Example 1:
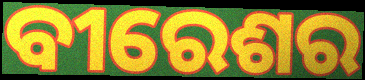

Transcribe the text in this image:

ବୀରେଶର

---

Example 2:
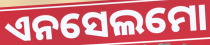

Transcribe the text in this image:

ଏନସେଲମୋ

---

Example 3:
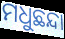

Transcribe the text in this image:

ମଧୁଛନ୍ଦା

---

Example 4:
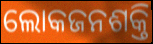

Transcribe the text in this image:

ଲୋକଜନଶକ୍ତି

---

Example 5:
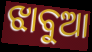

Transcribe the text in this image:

ଝାବୁଆ